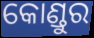
କୋଣ୍ଡୁର